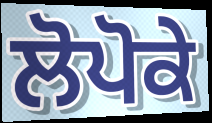
ਲੋਪੋਕੇ